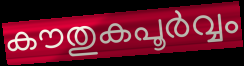
കൗതുകപൂർവ്വം